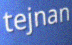
tejnan